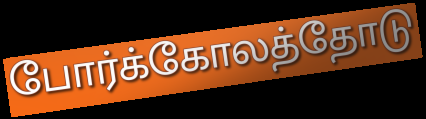
போர்க்கோலத்தோடு